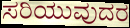
ಸರಿಯುವುದರ